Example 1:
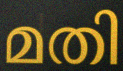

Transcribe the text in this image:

മതി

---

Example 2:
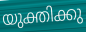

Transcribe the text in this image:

യുക്തിക്കു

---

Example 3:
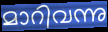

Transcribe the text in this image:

മാറിവന്നു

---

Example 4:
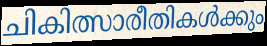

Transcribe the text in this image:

ചികിത്സാരീതികൾക്കും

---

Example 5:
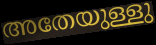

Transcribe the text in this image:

അതേയുള്ളു